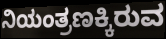
ನಿಯಂತ್ರಣಕ್ಕಿರುವ